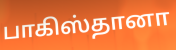
பாகிஸ்தானா